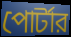
পোর্টার